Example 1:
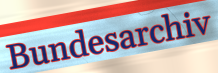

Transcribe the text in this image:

Bundesarchiv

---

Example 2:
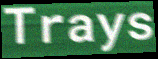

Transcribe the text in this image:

Trays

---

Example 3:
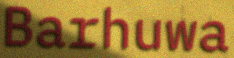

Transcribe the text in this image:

Barhuwa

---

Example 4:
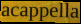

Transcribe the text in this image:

acappella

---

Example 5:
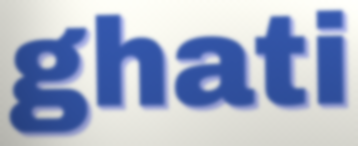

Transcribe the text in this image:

ghati